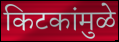
किटकांमुळे